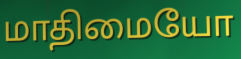
மாதிமையோ